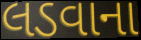
લડવાના